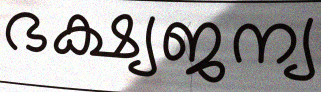
ഭക്ഷ്യജന്യ